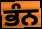
ਭੰਨ